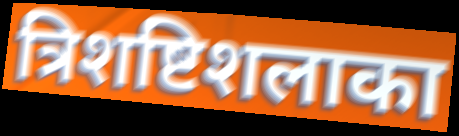
त्रिशष्टिशलाका